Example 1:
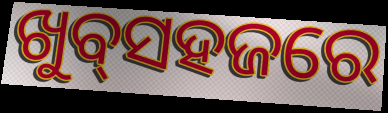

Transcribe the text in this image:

ଖୁବ୍‌ସହଜରେ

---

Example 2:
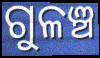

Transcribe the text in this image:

ଗୁଳଞ୍ଚ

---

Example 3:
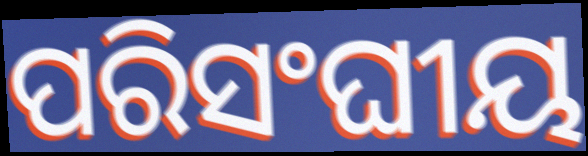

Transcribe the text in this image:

ପରିସଂଘୀୟ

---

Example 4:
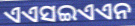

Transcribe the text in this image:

ଏଏସଇଏଏନ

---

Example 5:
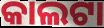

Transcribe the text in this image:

କାଲଟା